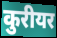
कुरीयर